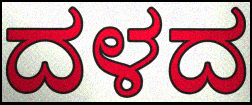
ದಳದ